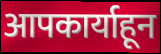
आपकार्याहून